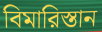
বিমারিস্তান